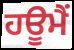
ਹਊਮੈਂ